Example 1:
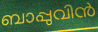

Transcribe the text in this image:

ബാപ്പുവിൻ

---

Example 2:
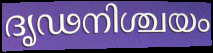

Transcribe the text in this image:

ദൃഢനിശ്ചയം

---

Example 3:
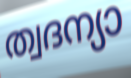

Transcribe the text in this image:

ത്വദന്യാ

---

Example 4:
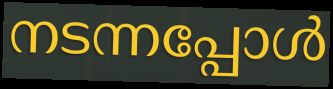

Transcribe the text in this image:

നടന്നപ്പോൾ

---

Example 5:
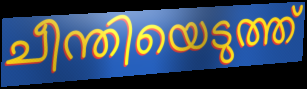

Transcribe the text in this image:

ചീന്തിയെടുത്ത്